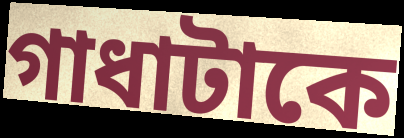
গাধাটাকে